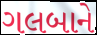
ગલબાને